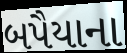
બપૈયાના